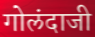
गोलंदाजी